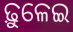
ଢ଼ୁଳେଇ